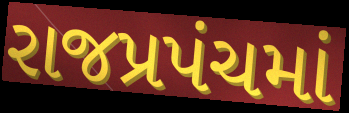
રાજપ્રપંચમાં